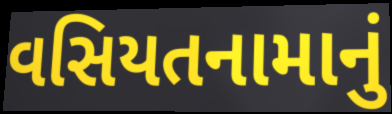
વસિયતનામાનું